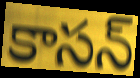
కాసన్